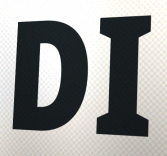
DI